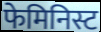
फेमिनिस्ट